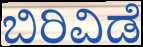
ಬಿರಿವಿಡೆ